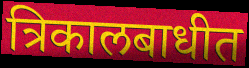
त्रिकालबाधीत